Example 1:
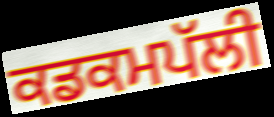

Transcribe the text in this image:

ਕਡਕਮਪੱਲੀ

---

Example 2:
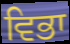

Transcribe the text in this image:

ਵਿਭਾ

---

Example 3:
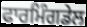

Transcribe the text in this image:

ਫਾਰਮਿੰਗਡੇਲ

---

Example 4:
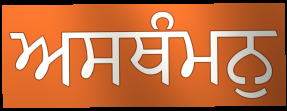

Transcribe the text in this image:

ਅਸਥੰਮਨੁ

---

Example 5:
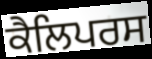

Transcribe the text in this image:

ਕੈਲਿਪਰਸ